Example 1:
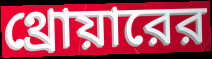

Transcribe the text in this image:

থ্রোয়ারের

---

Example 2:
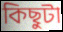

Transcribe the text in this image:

কিছুটা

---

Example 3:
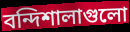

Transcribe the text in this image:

বন্দিশালাগুলো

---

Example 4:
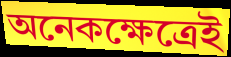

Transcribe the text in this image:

অনেকক্ষেত্রেই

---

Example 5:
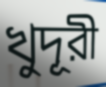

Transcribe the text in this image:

খুদূরী